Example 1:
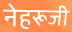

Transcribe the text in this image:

नेहरूजी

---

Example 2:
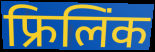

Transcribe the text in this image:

फ्रिलिंक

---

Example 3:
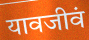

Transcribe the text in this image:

यावजीवं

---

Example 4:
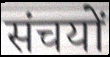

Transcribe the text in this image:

संचयों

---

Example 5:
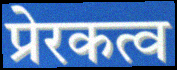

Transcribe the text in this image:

प्रेरकत्व